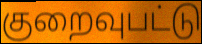
குறைவுபட்டு